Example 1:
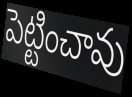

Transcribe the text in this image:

పెట్టించావు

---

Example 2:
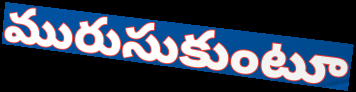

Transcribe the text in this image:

మురుసుకుంటూ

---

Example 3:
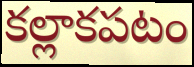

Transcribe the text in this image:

కల్లాకపటం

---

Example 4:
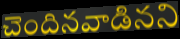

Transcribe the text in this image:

చెందినవాడినని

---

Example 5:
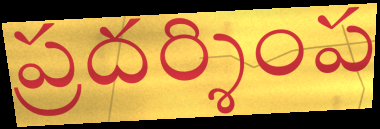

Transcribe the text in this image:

ప్రదర్శింప